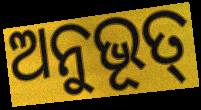
ଅନୁଭୂତ୍